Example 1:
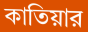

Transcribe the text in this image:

কাতিয়ার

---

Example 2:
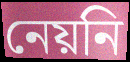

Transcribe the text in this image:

নেয়নি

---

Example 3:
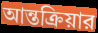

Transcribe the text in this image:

আন্তক্রিয়ার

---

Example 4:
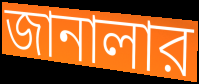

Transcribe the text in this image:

জানালার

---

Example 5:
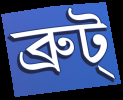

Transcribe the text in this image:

ব্রুট্